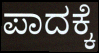
ಪಾದಕ್ಕೆ